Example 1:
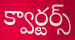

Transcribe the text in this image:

క్వార్టర్స్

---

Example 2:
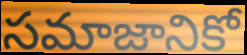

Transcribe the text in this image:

సమాజానికో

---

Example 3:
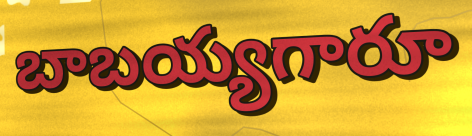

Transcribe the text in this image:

బాబయ్యగారూ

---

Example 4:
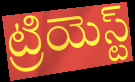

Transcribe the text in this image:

ట్రియెస్ట్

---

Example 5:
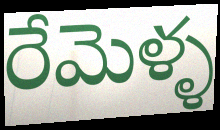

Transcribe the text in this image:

రేమెళ్ళ